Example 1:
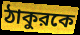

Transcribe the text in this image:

ঠাকুরকে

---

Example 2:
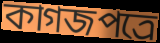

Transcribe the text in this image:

কাগজপত্রে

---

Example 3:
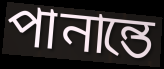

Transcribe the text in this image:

পানান্তে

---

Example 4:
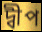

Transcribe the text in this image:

দ্বীপ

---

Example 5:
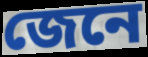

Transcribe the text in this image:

জেনে